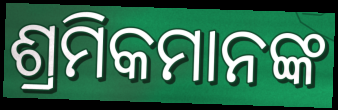
ଶ୍ରମିକମାନଙ୍କ